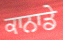
ਕਾਨਾਡੇ